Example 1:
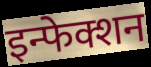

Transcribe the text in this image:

इन्‍फेक्‍शन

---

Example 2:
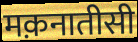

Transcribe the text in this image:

मक़नातीसी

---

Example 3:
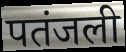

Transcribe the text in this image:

पतंजली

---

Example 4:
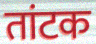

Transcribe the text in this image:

तांटक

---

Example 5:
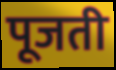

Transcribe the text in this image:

पूजती